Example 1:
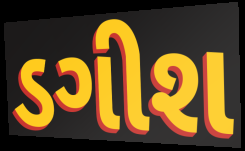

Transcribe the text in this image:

ડગીશ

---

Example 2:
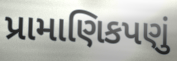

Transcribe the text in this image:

પ્રામાણિકપણું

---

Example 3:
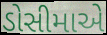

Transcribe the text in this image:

ડોસીમાએ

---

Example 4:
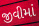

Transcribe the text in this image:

જીવીમાં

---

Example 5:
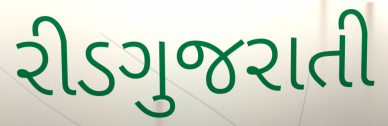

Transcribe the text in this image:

રીડગુજરાતી